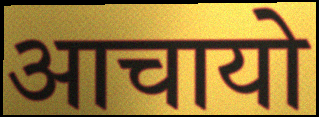
आचायो